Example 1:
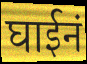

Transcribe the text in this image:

घाईनं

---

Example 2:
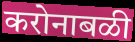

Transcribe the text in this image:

करोनाबळी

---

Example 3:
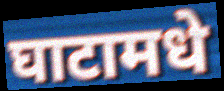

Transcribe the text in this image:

घाटामधे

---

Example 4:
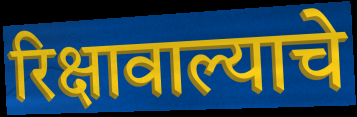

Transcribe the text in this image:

रिक्षावाल्याचे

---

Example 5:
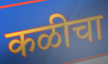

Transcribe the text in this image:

कळीचा